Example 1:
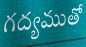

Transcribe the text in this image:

గద్యముతో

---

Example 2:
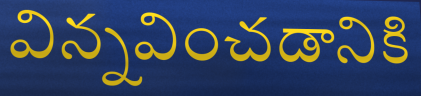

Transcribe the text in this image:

విన్నవించడానికి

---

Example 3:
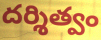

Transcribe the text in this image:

దర్శిత్వం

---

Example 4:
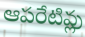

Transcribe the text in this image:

ఆపరేటివ్లు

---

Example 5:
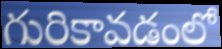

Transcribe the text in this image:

గురికావడంలో